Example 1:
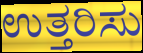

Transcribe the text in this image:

ಉತ್ತರಿಸು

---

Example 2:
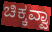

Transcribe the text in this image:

ಚಿಕ್ಕವ್ವಾ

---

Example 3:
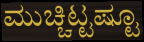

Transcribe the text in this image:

ಮುಚ್ಚಿಟ್ಟಷ್ಟೂ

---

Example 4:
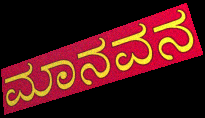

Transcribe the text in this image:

ಮಾನವನ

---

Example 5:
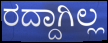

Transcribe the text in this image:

ರದ್ದಾಗಿಲ್ಲ